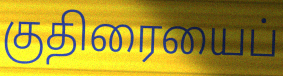
குதிரையைப்